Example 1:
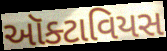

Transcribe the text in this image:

ઑક્ટાવિયસ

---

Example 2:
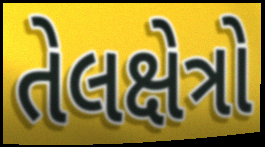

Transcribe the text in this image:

તેલક્ષેત્રો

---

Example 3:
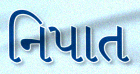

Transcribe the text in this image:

નિપાત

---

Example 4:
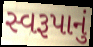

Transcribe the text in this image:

સ્વરૂપાનું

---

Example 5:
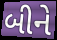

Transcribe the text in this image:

બીને